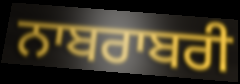
ਨਾਬਰਾਬਰੀ